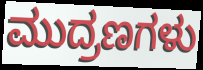
ಮುದ್ರಣಗಳು